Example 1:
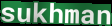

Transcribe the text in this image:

sukhman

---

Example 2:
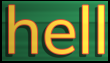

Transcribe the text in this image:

hell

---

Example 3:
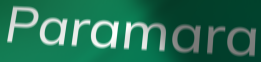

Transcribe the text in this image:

Paramara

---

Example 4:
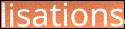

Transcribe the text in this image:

lisations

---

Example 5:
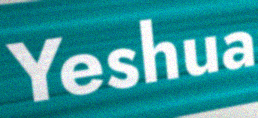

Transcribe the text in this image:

Yeshua